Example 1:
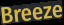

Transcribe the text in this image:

Breeze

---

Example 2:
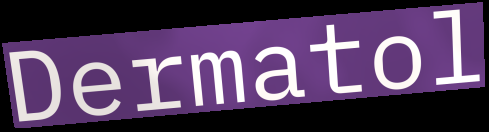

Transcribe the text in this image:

Dermatol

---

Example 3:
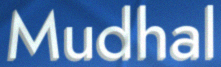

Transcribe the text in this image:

Mudhal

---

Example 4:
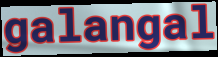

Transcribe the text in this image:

galangal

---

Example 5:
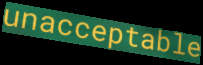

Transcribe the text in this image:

unacceptable